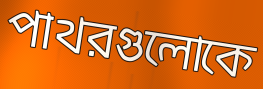
পাথরগুলোকে